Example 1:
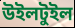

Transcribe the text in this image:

উইলটুইল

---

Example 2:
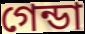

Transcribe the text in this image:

গেন্ডা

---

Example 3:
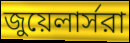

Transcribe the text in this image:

জুয়েলার্সরা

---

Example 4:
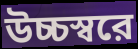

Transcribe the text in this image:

উচ্চস্বরে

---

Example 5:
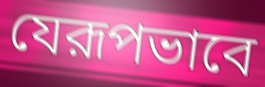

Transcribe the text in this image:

যেরূপভাবে